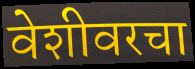
वेशीवरचा